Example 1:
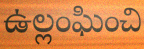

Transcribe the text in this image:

ఉల్లంఘించి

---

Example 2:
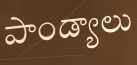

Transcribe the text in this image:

పాండ్యాలు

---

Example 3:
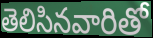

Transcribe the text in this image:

తెలిసినవారితో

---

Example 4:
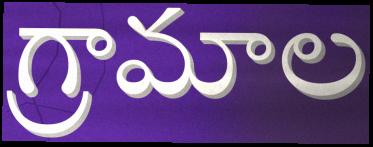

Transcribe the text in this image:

గ్రామాల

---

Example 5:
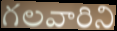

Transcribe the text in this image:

గలవారిని